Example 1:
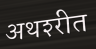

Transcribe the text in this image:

अथश्रीत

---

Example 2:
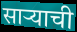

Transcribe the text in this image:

साऱ्याची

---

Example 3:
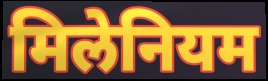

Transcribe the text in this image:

मिलेनियम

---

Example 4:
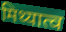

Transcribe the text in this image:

मिथ्यात्व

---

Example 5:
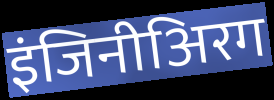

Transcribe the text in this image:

इंजिनीअिरग